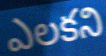
ఎలకని